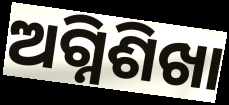
ଅଗ୍ନିଶିଖା